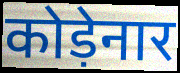
कोड़ेनार